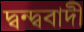
দ্বন্দ্ববাদী